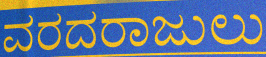
ವರದರಾಜುಲು